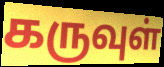
கருவுள்